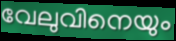
വേലുവിനെയും